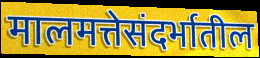
मालमत्तेसंदर्भातील